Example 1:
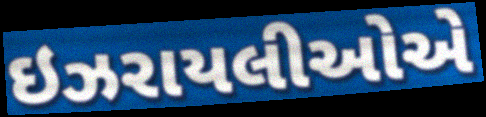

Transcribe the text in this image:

ઇઝરાયલીઓએ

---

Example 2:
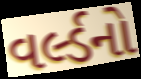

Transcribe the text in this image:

વર્લ્ડનો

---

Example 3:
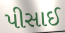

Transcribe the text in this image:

પીસાઈ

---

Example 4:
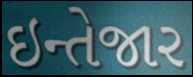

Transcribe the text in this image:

ઇન્તેજાર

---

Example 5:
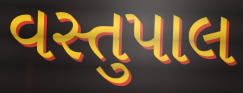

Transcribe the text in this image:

વસ્તુપાલ